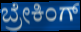
ಬ್ರೇಕಿಂಗ್